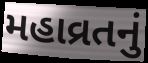
મહાવ્રતનું